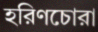
হরিণচোরা